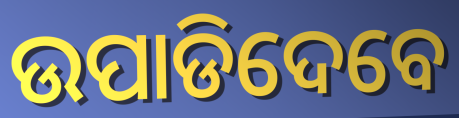
ଉପାଡିଦେବେ